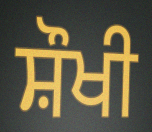
ਸ਼ੌਖੀ